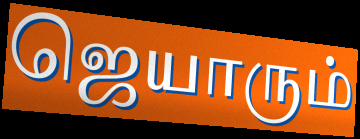
ஜெயாரும்